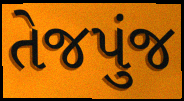
તેજપુંજ